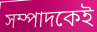
সম্পাদকেই